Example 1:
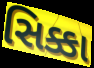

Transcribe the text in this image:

સિક્કા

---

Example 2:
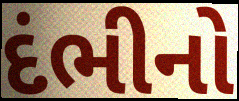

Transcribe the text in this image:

દંભીનો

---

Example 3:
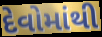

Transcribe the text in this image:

દેવોમાંથી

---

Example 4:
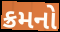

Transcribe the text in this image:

ક્રમનો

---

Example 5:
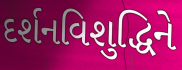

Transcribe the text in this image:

દર્શનવિશુદ્ધિને